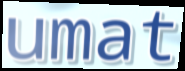
umat